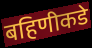
बहिणीकडे